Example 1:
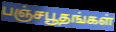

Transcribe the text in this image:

பஞ்சபூதங்கள்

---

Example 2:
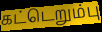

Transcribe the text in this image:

கட்டெறும்பு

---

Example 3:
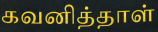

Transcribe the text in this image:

கவனித்தாள்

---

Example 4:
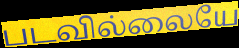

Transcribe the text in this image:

படவில்லையே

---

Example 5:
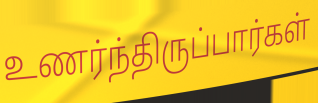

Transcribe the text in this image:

உணர்ந்திருப்பார்கள்